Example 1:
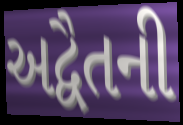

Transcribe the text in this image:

અદ્વૈતની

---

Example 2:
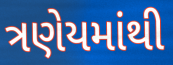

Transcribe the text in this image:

ત્રણેયમાંથી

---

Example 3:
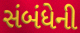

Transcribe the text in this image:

સંબંધેની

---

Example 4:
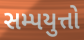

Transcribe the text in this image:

સમ્પયુત્તો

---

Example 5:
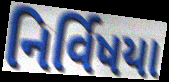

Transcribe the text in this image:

નિર્વિષયા